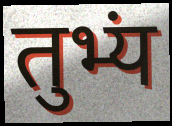
तुभ्यं